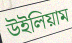
উইলিয়াম